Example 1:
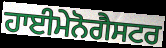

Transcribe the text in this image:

ਹਾਈਮੇਨੋਗੈਸਟਰ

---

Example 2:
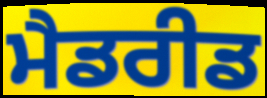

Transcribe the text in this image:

ਮੈਡਰੀਡ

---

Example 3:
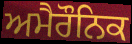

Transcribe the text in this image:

ਅਮੈਰੌਨਿਕ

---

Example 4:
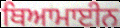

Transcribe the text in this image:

ਥਿਆਮਾਈਨ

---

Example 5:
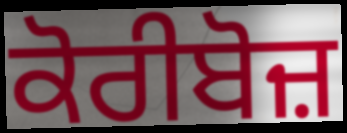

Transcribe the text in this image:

ਕੋਰੀਬੋਜ਼